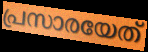
പ്രസാരയേത്